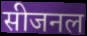
सीजनल